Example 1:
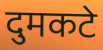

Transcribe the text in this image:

दुमकटे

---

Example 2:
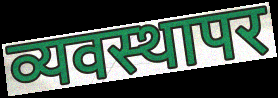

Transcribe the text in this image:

व्यवस्थापर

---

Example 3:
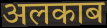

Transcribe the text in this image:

अलकाब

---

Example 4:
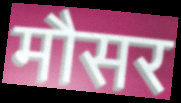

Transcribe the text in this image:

मौसर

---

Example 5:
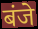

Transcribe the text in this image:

बंजे